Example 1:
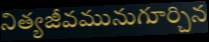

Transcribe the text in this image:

నిత్యజీవమునుగూర్చిన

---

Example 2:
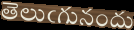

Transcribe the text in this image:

తెలుఁగునందు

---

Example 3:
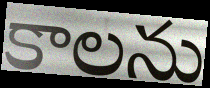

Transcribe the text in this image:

కాలను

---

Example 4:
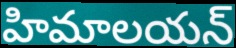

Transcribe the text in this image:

హిమాలయన్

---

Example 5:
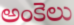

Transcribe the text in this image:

అంకెలు